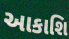
આકાશિ